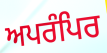
ਅਪਰੰਪਿਰ